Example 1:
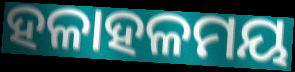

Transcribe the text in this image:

ହଳାହଳମୟ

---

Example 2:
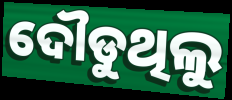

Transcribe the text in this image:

ଦୌଡୁଥିଲୁ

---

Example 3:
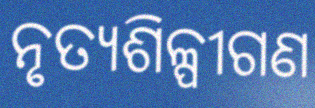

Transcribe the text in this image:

ନୃତ୍ୟଶିଳ୍ପୀଗଣ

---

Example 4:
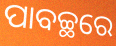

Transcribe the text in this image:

ପାବଚ୍ଛରେ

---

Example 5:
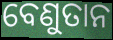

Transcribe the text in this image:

ବେଣୁତାନ